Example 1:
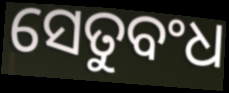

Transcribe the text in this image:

ସେତୁବଂଧ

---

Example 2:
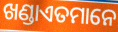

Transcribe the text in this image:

ଖଣ୍ଡାଏତମାନେ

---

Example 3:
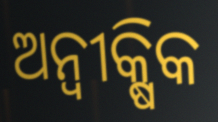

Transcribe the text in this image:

ଅନ୍ୱୀକ୍ଷିକ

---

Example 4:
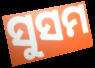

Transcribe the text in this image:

ସୁସମ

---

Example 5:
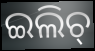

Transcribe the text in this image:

ଇଲିଚ୍